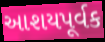
આશયપૂર્વક